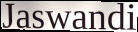
Jaswandi